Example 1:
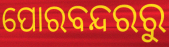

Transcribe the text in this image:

ପୋରବନ୍ଦରରୁ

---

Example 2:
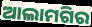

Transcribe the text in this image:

ଆଲାମଗିର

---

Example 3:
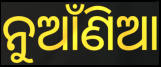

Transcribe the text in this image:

ନୁଆଁଣିଆ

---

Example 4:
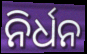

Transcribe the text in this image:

ନିର୍ଧନ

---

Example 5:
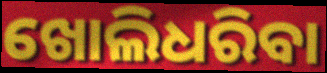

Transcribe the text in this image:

ଖୋଲିଧରିବା